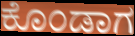
ಕೊಂಡಾಗ